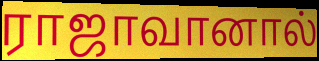
ராஜாவானால்